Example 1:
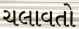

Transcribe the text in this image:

ચલાવતો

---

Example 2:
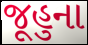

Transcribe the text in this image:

જૂહુના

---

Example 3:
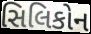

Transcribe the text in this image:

સિલિકોન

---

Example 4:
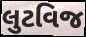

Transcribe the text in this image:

લુટવિજ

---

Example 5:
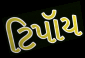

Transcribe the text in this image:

ટિપૉય